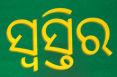
ସ୍ୱସ୍ତିର